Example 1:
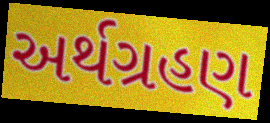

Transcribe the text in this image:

અર્થગ્રહણ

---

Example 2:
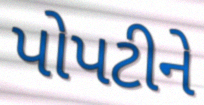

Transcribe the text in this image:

પોપટીને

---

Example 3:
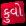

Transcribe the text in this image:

કુવો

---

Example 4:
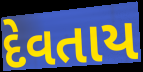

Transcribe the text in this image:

દેવતાય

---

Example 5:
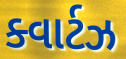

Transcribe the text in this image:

ક્વાર્ટઝ